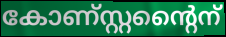
കോണ്സ്റ്റന്റൈന്